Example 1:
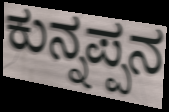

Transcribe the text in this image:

ಕುನ್ನಪ್ಪನ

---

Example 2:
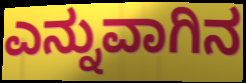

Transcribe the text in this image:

ಎನ್ನುವಾಗಿನ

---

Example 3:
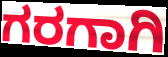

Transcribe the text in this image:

ಗರಗಾಗಿ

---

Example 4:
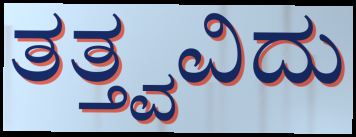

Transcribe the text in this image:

ತತ್ತ್ವವಿದು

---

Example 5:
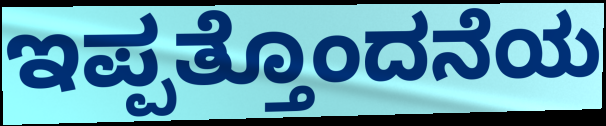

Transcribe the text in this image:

ಇಪ್ಪತ್ತೊಂದನೆಯ